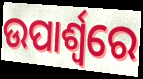
ଉପାର୍ଶ୍ଵରେ